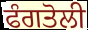
ਫੰਗਤੋਲੀ